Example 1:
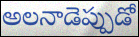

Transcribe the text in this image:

అలనాడెప్పుడో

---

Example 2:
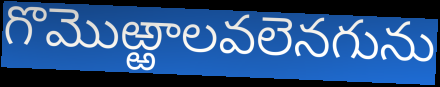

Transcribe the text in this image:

గొమొఱ్ఱాలవలెనగును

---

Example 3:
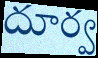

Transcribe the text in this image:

దూర్వ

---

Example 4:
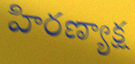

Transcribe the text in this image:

హిరణ్యాక్ష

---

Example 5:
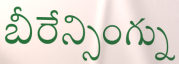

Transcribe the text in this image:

బీరేన్సింగ్ను